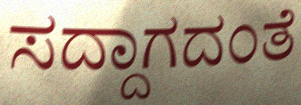
ಸದ್ದಾಗದಂತೆ